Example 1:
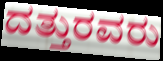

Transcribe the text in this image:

ದತ್ತುರವರು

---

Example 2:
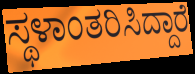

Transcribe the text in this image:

ಸ್ಥಳಾಂತರಿಸಿದ್ದಾರೆ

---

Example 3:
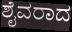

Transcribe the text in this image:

ಶೈವರಾದ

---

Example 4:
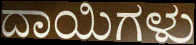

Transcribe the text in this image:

ದಾಯಿಗಳು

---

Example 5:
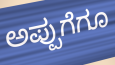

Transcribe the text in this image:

ಅಪ್ಪುಗೆಗೂ